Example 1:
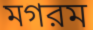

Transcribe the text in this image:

মগরম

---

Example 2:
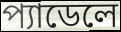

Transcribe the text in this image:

প্যাডেলে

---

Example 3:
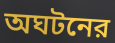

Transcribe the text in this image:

অঘটনের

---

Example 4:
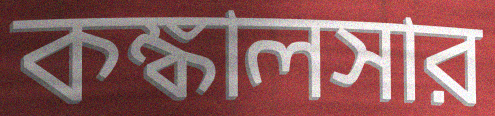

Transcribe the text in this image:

কঙ্কালসার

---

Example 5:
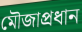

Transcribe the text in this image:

মৌজাপ্রধান